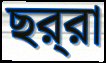
ছর্‌রা